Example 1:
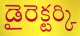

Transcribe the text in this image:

డైరెక్టర్కి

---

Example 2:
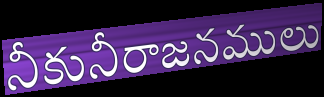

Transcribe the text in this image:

నీకునీరాజనములు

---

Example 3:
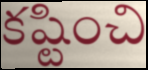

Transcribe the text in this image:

కష్టించి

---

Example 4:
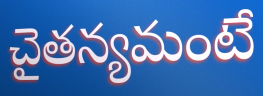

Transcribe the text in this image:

చైతన్యమంటే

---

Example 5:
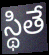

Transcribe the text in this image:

స్థితే